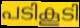
പടികൂടി